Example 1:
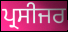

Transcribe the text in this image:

ਪ੍ਰਸੀਜਰ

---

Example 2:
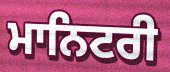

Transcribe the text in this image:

ਮਾਨਿਟਰੀ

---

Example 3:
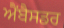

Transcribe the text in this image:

ਐਂਬੈਸਡਰ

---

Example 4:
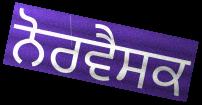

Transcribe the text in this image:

ਨੋਰਵੈਸਕ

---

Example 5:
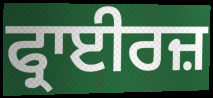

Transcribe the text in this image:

ਫ੍ਰਾਈਰਜ਼